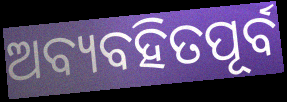
ଅବ୍ୟବହିତପୂର୍ବ